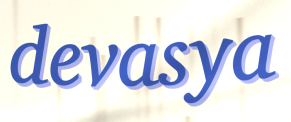
devasya